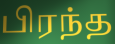
பிரந்த